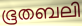
ഭൂതബലി